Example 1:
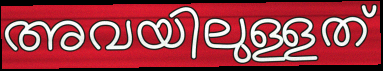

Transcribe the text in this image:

അവയിലുള്ളത്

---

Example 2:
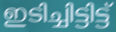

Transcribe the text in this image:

ഇടിച്ചിട്ടിട്ട്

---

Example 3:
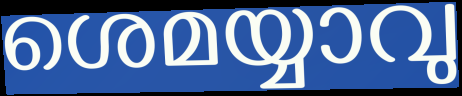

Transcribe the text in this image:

ശെമയ്യാവു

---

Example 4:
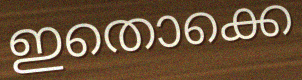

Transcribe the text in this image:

ഇതൊക്കെ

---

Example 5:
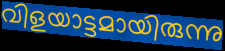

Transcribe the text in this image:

വിളയാട്ടമായിരുന്നു